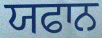
ਯਫਾਨ